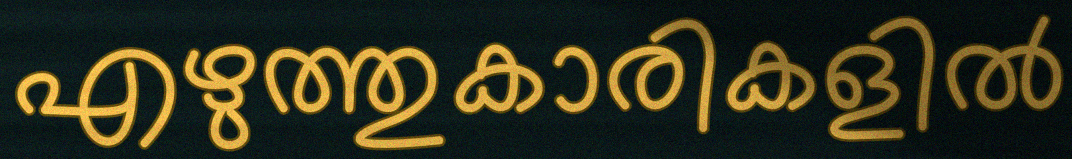
എഴുത്തുകാരികളിൽ